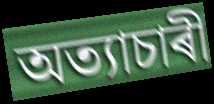
অত্যাচাৰী